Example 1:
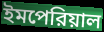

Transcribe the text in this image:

ইমপেরিয়াল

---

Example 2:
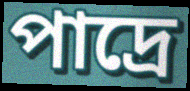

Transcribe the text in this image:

পাদ্রে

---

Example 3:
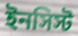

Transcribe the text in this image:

ইনসিস্ট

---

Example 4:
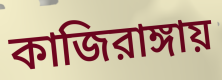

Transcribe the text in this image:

কাজিরাঙ্গায়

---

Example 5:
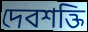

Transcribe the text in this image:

দেবশক্তি